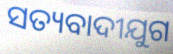
ସତ୍ୟବାଦୀଯୁଗ